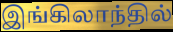
இங்கிலாந்தில்